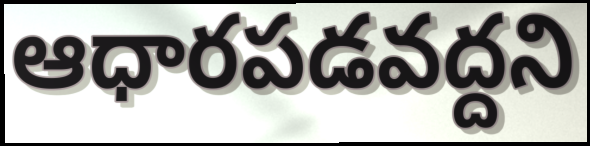
ఆధారపడవద్దని